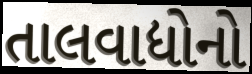
તાલવાદ્યોનો